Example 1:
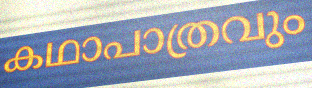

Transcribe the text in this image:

കഥാപാത്രവും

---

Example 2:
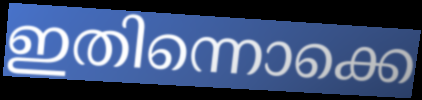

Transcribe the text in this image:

ഇതിന്നൊക്കെ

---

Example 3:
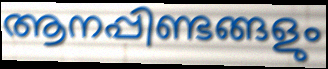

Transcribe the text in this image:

ആനപ്പിണ്ടങ്ങളും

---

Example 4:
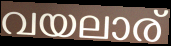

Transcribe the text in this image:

വയലാര്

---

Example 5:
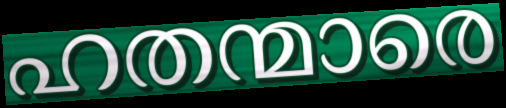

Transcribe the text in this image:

ഹതന്മാരെ